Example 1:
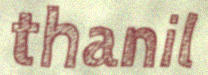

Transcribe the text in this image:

thanil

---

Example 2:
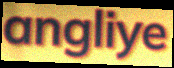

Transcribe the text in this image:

angliye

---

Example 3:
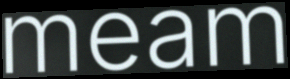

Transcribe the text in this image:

meam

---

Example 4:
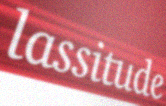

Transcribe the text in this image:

lassitude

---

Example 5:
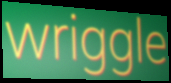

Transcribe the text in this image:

wriggle